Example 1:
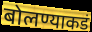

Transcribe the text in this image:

बोलण्याकडं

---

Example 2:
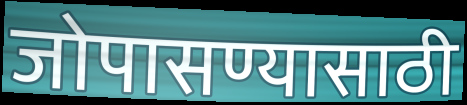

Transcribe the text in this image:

जोपासण्यासाठी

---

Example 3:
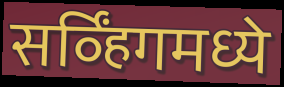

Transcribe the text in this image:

सर्व्हिंगमध्ये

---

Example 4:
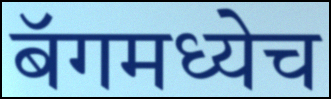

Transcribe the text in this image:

बॅगमध्येच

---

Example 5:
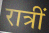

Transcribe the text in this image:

रात्रीं